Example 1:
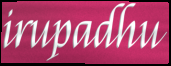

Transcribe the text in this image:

irupadhu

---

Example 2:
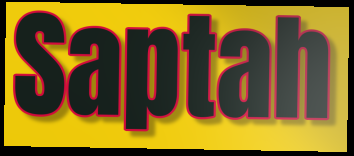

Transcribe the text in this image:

Saptah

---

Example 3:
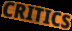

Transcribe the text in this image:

CRITICS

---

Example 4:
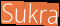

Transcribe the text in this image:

Sukra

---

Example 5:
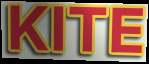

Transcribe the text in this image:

KITE